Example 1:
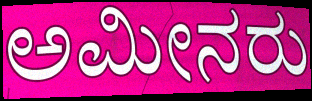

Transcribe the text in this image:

ಅಮೀನರು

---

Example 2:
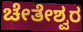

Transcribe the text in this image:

ಚೇತೇಶ್ವರ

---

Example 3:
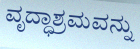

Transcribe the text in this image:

ವೃದ್ಧಾಶ್ರಮವನ್ನು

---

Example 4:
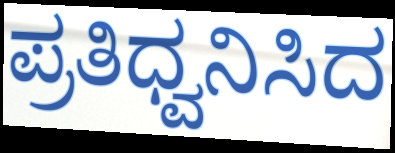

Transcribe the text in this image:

ಪ್ರತಿಧ್ವನಿಸಿದ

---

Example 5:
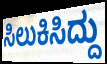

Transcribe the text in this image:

ಸಿಲುಕಿಸಿದ್ದು